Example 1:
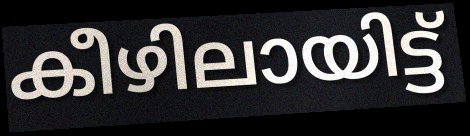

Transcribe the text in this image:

കീഴിലായിട്ട്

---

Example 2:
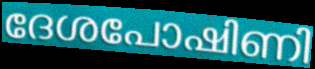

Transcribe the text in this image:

ദേശപോഷിണി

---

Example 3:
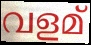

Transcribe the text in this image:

വളമ്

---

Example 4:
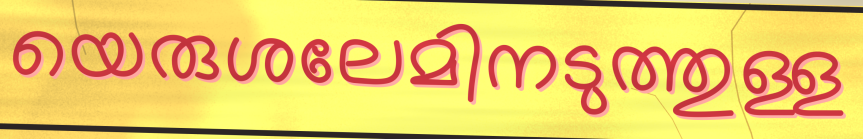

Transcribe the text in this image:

യെരുശലേമിനടുത്തുള്ള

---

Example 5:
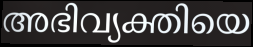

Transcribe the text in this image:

അഭിവ്യക്തിയെ